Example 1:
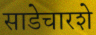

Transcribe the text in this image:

साडेचारशे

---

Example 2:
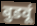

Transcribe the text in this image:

बुडवूं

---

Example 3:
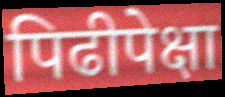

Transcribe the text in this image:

पिढीपेक्षा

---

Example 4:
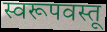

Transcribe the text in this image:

स्वरूपवस्तू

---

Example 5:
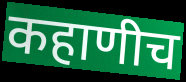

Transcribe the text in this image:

कहाणीच